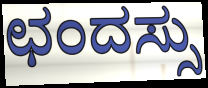
ಛಂದಸ್ಸು